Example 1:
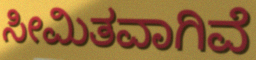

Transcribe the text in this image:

ಸೀಮಿತವಾಗಿವೆ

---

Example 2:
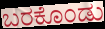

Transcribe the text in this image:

ಬರಕೊಂಡು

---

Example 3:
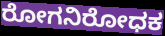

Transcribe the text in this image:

ರೋಗನಿರೋಧಕ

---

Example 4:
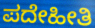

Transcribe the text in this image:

ಪದೇಹೀತಿ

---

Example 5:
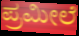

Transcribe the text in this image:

ಪ್ರಮೀಲೆ